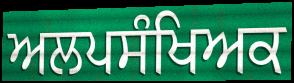
ਅਲਪਸੰਖਿਅਕ